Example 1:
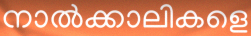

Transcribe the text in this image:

നാൽക്കാലികളെ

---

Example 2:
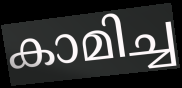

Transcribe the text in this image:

കാമിച്ച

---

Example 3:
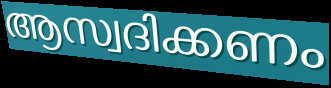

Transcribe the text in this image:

ആസ്വദിക്കണം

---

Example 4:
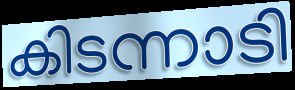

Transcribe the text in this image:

കിടന്നാടി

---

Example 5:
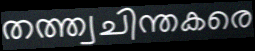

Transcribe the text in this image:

തത്ത്വചിന്തകരെ